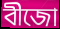
বীজো